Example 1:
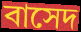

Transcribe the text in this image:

বাসেদ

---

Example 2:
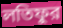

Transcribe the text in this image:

লতিফুর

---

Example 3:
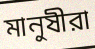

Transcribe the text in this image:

মানুষীরা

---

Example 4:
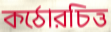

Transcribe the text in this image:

কঠোরচিত্ত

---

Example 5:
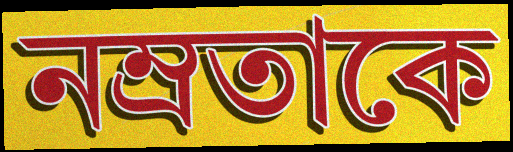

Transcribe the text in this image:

নম্রতাকে